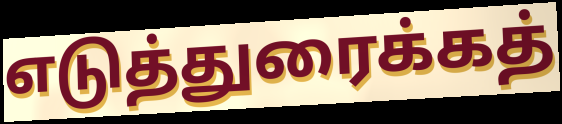
எடுத்துரைக்கத்